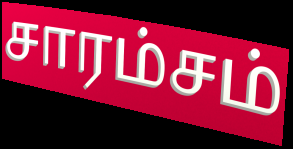
சாரம்சம்